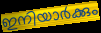
ഇനിയാർക്കും